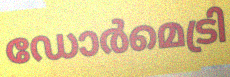
ഡോർമെട്രി